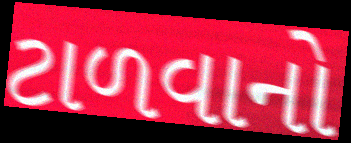
ટાળવાનો